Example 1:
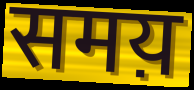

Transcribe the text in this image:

समय़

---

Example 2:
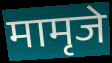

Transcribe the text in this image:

मामृजे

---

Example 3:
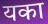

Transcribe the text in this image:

यका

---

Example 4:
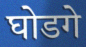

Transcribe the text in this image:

घोडगे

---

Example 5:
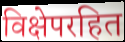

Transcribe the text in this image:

विक्षेपरहित